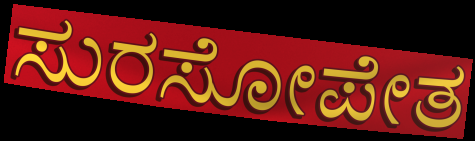
ಸುರಸೋಪೇತ